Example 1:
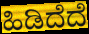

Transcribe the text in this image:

ಹಿಡಿದೆದೆ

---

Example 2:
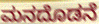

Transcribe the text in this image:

ಮನದೊಡನೆ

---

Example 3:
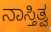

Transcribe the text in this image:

ನಾಸ್ತಿತ್ವ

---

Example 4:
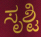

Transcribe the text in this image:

ಸೃಶ್ಟಿ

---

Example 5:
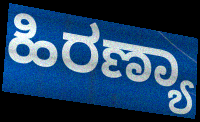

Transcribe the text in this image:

ಹಿರಣ್ಯಾ